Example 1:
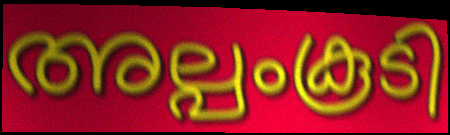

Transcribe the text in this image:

അല്പംകൂടി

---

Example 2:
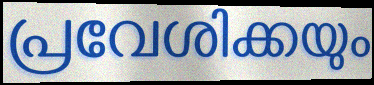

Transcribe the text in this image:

പ്രവേശിക്കയും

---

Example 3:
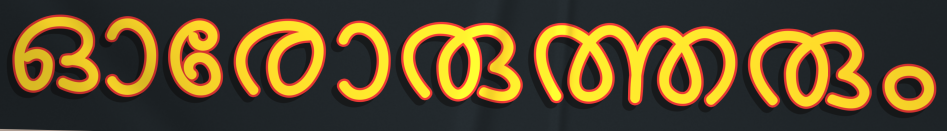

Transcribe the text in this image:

ഓരോരുത്തരും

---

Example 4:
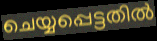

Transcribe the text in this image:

ചെയ്യപ്പെട്ടതിൽ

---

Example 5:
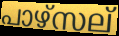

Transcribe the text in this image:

പാഴ്സല്